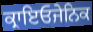
ਕ੍ਰਾਇਓਜੇਨਿਕ